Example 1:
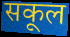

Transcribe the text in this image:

सकूल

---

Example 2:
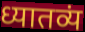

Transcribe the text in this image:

ध्यातव्यं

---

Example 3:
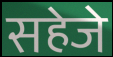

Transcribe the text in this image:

सहेजे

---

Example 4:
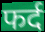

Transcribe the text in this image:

फर्द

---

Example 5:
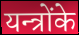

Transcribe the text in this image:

यन्त्रोंके